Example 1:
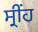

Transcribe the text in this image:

ਸ੍ਰੀਂਹ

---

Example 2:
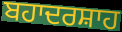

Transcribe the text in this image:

ਬਹਾਦਰਸ਼ਾਹ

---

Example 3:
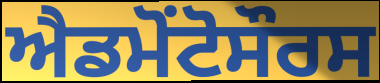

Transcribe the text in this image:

ਐਡਮੋਂਟੋਸੌਰਸ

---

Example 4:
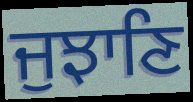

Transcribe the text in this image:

ਜੁਝਾਣਿ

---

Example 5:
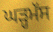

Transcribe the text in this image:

ਘੜ੍ਹਮੱਸ